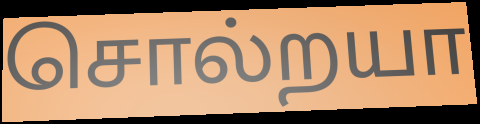
சொல்றயா